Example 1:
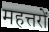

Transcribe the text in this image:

महत्तरों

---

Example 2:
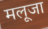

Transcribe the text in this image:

मलूजा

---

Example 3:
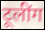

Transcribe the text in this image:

टूलींग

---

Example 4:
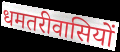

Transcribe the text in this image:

धमतरीवासियों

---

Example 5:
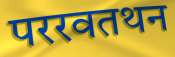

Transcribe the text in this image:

पररवतथन